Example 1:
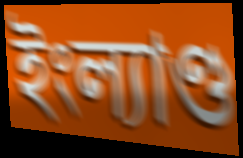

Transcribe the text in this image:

ইংল্যাণ্ড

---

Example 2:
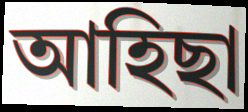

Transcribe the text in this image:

আহিছা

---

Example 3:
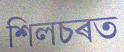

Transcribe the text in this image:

শিলচৰত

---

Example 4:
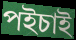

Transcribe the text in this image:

পইচাই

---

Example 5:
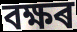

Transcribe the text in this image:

বক্ষৰ